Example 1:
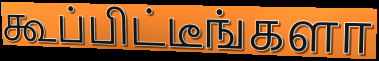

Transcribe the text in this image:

கூப்பிட்டீங்களா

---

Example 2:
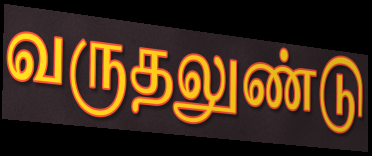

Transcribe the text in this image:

வருதலுண்டு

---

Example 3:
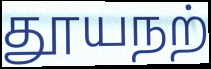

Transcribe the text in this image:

தூயநற்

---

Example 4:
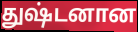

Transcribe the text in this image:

துஷ்டனான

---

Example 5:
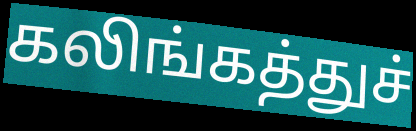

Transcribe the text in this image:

கலிங்கத்துச்